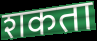
शकता